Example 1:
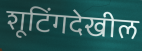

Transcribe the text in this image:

शूटिंगदेखील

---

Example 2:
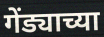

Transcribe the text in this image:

गेंड्याच्या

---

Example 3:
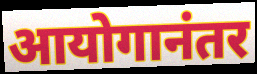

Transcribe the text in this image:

आयोगानंतर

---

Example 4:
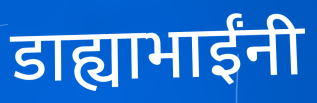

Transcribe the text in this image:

डाह्याभाईंनी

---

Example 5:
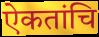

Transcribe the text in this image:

ऐकतांचि